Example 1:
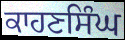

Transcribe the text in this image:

ਕਾਹਣਸਿੰਘ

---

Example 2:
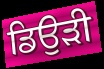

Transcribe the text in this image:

ਡਿਉੜੀ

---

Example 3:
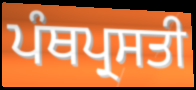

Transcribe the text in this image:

ਪੰਥਪ੍ਰਸਤੀ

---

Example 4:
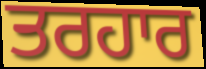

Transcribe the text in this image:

ਤਰਹਾਰ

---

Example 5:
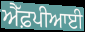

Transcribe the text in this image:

ਐੱਫ਼ਪੀਆਈ